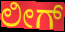
ಲೀಗ್